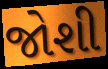
જોશી